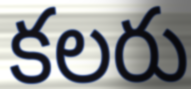
కలరు